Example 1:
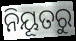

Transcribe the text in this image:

ନିୟୂତରୁ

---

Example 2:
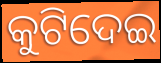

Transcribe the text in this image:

କୁଟିଦେଇ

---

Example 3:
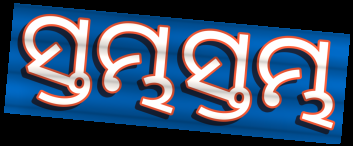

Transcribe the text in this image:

ସ୍ତମ୍ଭସ୍ତମ୍ଭ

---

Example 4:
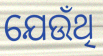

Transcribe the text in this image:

ଯେଉଁଥି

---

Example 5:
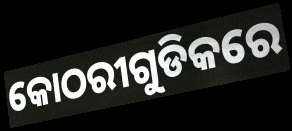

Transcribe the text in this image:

କୋଠରୀଗୁଡିକରେ